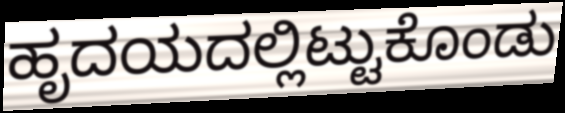
ಹೃದಯದಲ್ಲಿಟ್ಟುಕೊಂಡು